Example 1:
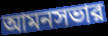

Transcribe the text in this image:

আমনসভার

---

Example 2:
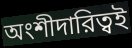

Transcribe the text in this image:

অংশীদারিত্বই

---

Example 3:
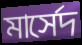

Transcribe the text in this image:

মার্সেদ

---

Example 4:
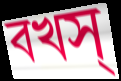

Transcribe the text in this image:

বখস্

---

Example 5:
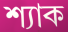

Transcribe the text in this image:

শ্যাক